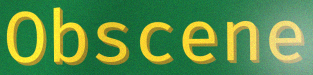
Obscene